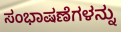
ಸಂಭಾಷಣೆಗಳನ್ನು